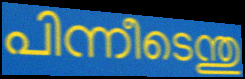
പിന്നീടെന്തു